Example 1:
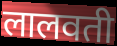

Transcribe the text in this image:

लालवती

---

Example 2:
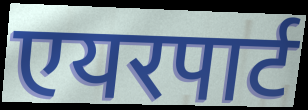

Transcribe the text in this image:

एयरपार्ट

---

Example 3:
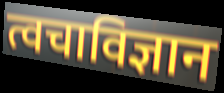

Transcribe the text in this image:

त्वचाविज्ञान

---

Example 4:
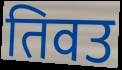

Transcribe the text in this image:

तिवउ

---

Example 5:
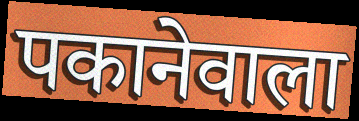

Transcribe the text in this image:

पकानेवाला